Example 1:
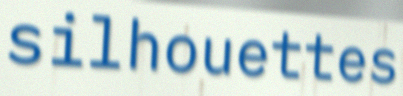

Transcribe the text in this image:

silhouettes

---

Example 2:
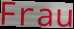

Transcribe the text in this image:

Frau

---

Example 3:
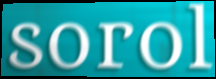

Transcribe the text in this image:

sorol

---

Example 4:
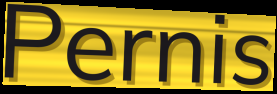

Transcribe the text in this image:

Pernis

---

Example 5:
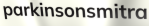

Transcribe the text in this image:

parkinsonsmitra